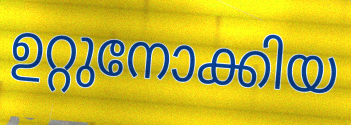
ഉറ്റുനോക്കിയ